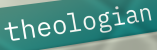
theologian